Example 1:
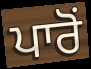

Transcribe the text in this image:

ਪਾਰੋਂ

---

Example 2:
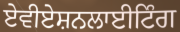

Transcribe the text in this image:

ਏਵੀਏਸ਼ਨਲਾਈਟਿੰਗ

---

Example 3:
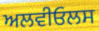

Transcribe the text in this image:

ਅਲਵੀਓਲਸ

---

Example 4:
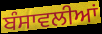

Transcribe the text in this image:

ਬੰਸਾਵਲੀਆਂ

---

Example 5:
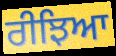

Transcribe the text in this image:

ਰੀਝਿਆ